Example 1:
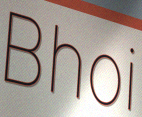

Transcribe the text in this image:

Bhoi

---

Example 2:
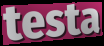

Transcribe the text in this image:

testa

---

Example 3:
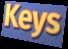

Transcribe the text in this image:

Keys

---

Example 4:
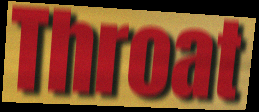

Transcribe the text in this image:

Throat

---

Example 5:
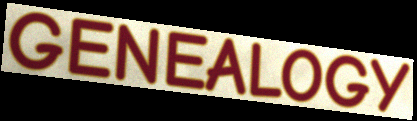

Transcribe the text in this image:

GENEALOGY